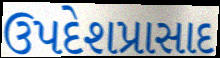
ઉપદેશપ્રાસાદ